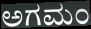
ಅಗಮಂ